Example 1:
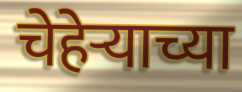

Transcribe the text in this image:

चेहेऱ्याच्या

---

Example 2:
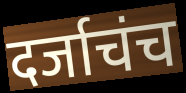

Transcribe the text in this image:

दर्जाचंच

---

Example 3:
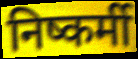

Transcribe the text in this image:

निष्कर्मी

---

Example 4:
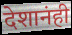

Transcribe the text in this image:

देशानंही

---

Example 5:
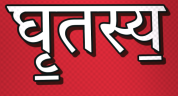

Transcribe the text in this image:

घृ॒तस्य॒